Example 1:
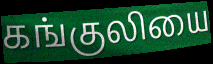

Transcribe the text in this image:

கங்குலியை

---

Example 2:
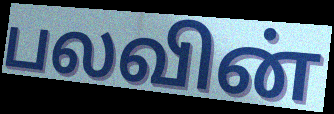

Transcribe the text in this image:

பலவின்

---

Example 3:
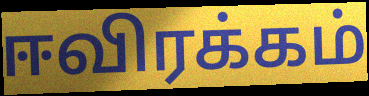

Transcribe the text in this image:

ஈவிரக்கம்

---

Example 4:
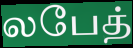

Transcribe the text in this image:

லபேத்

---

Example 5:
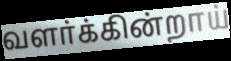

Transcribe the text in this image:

வளர்க்கின்றாய்